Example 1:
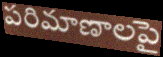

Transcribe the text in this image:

పరిమాణాలపై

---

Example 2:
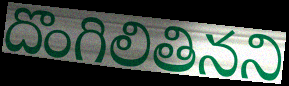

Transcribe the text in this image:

దొంగిలితినని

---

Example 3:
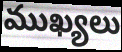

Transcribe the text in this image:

ముఖ్యలు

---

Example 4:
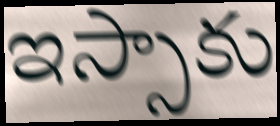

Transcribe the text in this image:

ఇస్సాకు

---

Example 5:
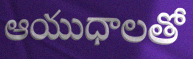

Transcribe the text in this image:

ఆయుధాలతో